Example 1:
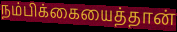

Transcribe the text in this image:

நம்பிக்கையைத்தான்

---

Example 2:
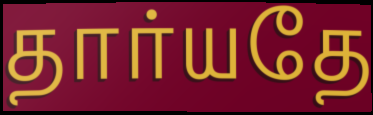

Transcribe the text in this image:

தார்யதே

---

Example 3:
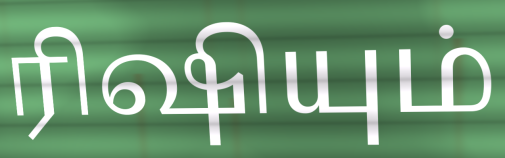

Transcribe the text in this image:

ரிஷியும்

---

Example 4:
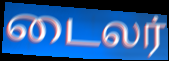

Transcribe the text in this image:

டைலர்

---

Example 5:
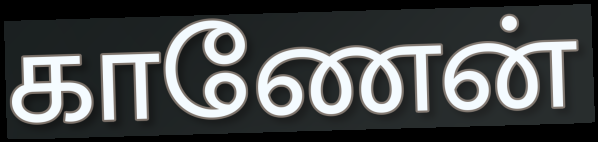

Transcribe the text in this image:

காணேன்